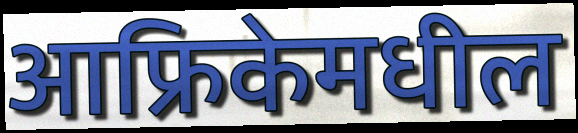
आफ्रिकेमधील